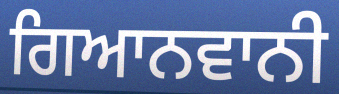
ਗਿਆਨਵਾਨੀ